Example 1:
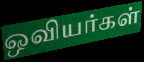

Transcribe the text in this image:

ஒவியர்கள்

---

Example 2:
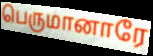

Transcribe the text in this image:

பெருமானாரே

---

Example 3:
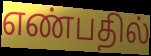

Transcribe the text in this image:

எண்பதில்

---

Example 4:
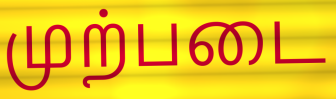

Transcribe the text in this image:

முற்படை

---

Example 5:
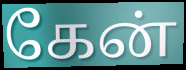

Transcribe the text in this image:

கேன்